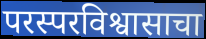
परस्परविश्वासाचा